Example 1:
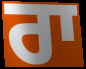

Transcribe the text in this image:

ਰਾ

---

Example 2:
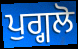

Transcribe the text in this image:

ਪੁਗ੍ਗਲੋ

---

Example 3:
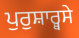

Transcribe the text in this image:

ਪੁਰੁਸ਼ਾਰ੍ਥਸੇ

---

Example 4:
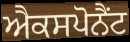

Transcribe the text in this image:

ਐਕਸਪੋਨੈਂਟ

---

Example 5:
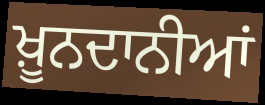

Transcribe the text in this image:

ਖ਼ੂਨਦਾਨੀਆਂ